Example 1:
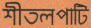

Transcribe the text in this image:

শীতলপাটি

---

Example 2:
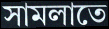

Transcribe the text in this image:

সামলাতে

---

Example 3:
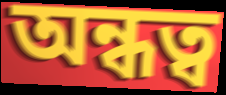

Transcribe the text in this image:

অন্ধত্ব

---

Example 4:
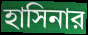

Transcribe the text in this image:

হাসিনার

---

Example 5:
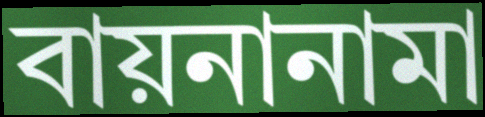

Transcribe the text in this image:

বায়নানামা